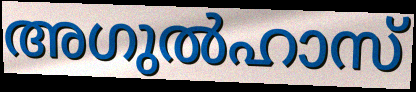
അഗുൽഹാസ്